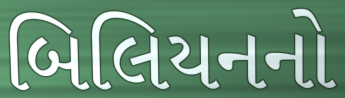
બિલિયનનો